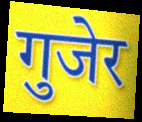
गुजेर